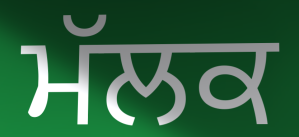
ਮੱਲਕ